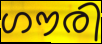
ഗൗരി